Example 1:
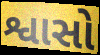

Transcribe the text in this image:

શ્વાસો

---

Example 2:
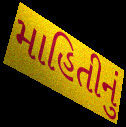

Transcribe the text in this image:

માહિતીનું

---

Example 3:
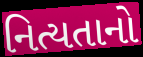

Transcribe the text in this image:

નિત્યતાનો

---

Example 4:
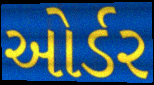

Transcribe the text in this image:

ઓર્ડર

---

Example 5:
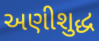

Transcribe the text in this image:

અણીશુદ્ધ